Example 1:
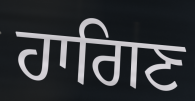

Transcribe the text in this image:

ਹਾਗਿਣ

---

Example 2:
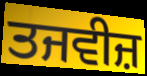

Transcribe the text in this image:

ਤਜਵੀਜ਼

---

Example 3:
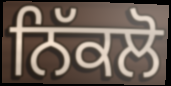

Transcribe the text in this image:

ਨਿੱਕਲੋ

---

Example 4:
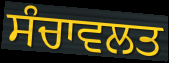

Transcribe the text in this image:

ਸੰਚਾਵਲਤ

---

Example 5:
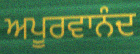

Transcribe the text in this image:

ਅਪੂਰਵਾਨੰਦ